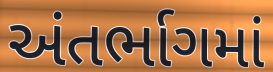
અંતર્ભાગમાં